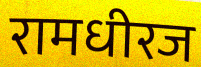
रामधीरज